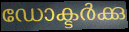
ഡോക്ടർക്കു